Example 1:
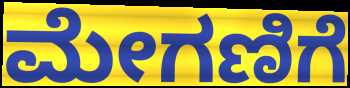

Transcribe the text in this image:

ಮೇಗಣಿಗೆ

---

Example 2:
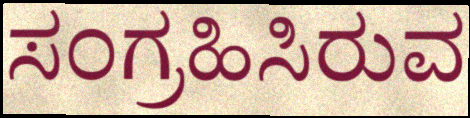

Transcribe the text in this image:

ಸಂಗ್ರಹಿಸಿರುವ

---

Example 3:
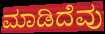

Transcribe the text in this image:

ಮಾಡಿದೆವು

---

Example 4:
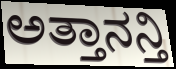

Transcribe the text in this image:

ಅತ್ತಾನನ್ತಿ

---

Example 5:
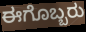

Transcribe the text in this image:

ಈಗೊಬ್ಬರು